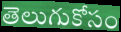
తెలుగుకోసం